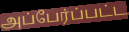
அப்பேர்ப்பட்ட